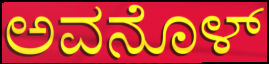
ಅವನೊಳ್